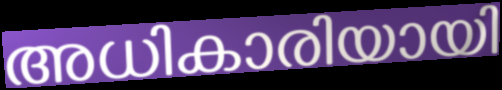
അധികാരിയായി